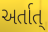
અર્તાત્